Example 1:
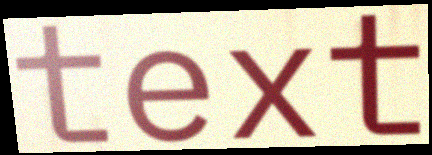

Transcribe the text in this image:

text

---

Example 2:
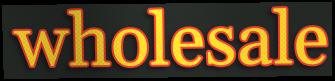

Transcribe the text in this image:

wholesale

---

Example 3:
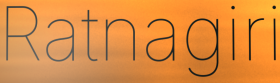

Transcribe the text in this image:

Ratnagiri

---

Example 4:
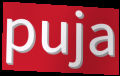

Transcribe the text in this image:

puja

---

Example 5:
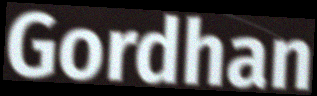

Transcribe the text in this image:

Gordhan